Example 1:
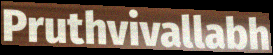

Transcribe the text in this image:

Pruthvivallabh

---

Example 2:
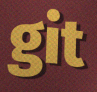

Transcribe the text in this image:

git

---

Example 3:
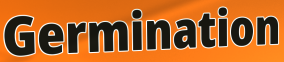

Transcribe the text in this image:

Germination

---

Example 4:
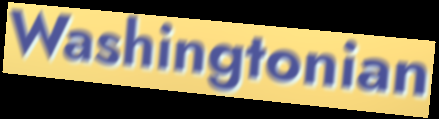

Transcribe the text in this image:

Washingtonian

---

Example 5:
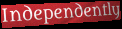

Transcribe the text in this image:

Independently